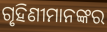
ଗୃହିଣୀମାନଙ୍କର